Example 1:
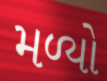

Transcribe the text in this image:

મળ્યો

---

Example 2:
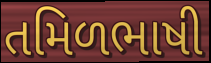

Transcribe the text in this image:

તમિળભાષી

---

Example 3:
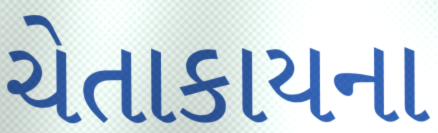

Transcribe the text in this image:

ચેતાકાયના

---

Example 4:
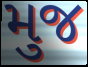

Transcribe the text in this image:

મુજ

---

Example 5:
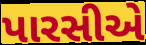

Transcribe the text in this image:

પારસીએ